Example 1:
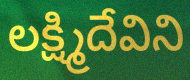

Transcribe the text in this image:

లక్ష్మిదేవిని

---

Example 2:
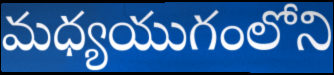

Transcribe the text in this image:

మధ్యయుగంలోని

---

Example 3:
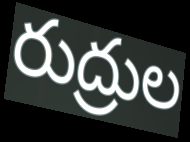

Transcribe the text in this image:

రుద్రుల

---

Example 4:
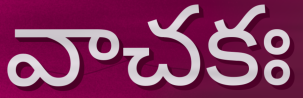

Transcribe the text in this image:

వాచకః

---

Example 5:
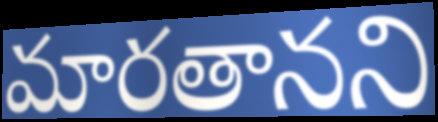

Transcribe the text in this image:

మారతానని